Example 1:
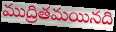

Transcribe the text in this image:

ముద్రితమయినది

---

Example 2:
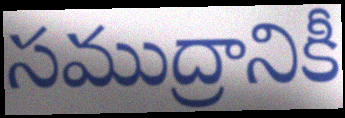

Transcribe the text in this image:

సముద్రానికీ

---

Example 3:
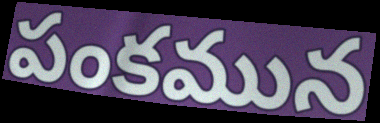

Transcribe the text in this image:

పంకమున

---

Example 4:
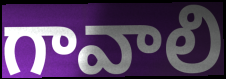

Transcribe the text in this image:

గావాలి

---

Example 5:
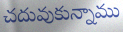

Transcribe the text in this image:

చదువుకున్నాము